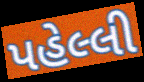
પહેલ્લી